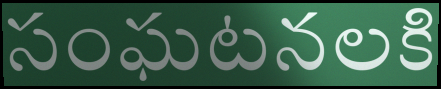
సంఘటనలకి